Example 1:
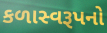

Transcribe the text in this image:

કળાસ્વરૂપનો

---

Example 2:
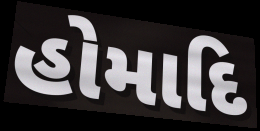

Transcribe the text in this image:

હોમાદિ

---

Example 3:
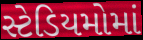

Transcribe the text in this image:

સ્ટેડિયમોમાં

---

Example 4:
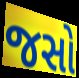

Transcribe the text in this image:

જસો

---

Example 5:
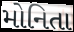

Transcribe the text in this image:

મોનિતા